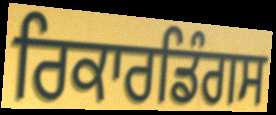
ਰਿਕਾਰਡਿੰਗਸ